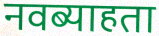
नवब्याहता